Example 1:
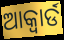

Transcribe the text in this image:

ଆକ୍ୱାର୍ଡ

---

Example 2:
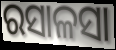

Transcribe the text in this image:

ରସାଳସା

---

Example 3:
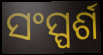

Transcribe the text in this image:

ସଂସ୍ପର୍ଶ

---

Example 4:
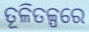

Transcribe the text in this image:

ତୂଳିତଳ୍ପରେ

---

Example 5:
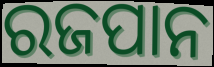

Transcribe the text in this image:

ରଜପାନ